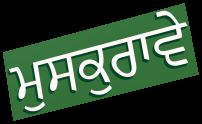
ਮੁਸਕੁਰਾਵੇ